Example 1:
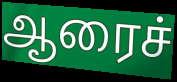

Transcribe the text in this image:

ஆரைச்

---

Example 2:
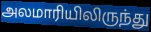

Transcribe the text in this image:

அலமாரியிலிருந்து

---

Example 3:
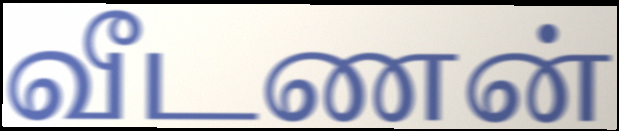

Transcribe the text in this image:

வீடணன்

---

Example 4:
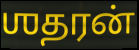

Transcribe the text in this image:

ஶதரன்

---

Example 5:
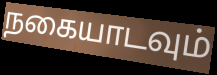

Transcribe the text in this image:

நகையாடவும்